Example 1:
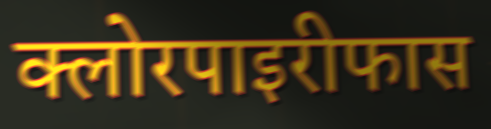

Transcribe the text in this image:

क्लोरपाइरीफास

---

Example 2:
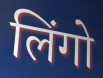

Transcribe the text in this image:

लिंगो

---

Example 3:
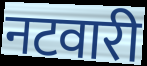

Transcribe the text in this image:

नटवारी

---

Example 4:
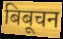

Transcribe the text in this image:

बिबूचन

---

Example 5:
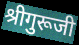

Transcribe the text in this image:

श्रीगुरूजी